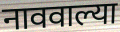
नाववाल्या